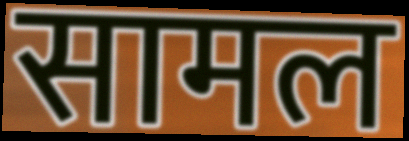
सामल